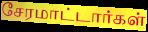
சேரமாட்டார்கள்